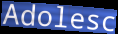
Adolesc